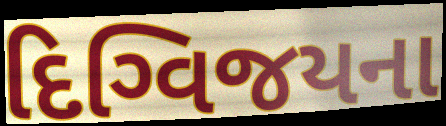
દિગ્વિજયના